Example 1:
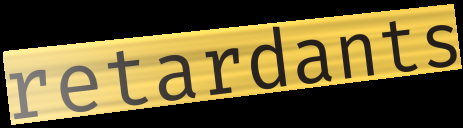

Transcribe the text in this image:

retardants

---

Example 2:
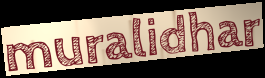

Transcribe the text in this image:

muralidhar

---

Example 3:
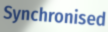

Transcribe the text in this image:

Synchronised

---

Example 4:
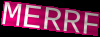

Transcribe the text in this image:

MERRF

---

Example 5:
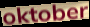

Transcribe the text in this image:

oktober